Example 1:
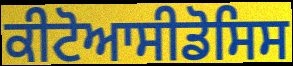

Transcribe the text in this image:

ਕੀਟੋਆਸੀਡੋਸਿਸ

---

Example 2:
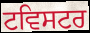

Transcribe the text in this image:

ਟਵਿਸਟਰ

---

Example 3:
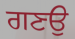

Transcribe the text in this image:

ਗਣਉ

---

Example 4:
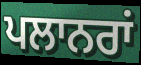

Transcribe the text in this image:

ਪਲਾਨਰਾਂ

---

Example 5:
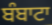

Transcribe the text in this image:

ਬੰਬਾਟਾ